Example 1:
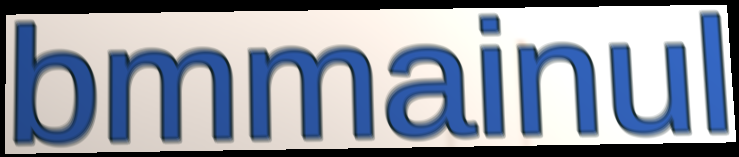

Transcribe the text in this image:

bmmainul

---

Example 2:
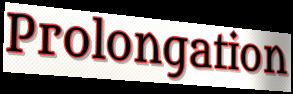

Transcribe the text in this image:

Prolongation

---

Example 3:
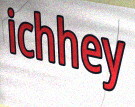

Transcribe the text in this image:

ichhey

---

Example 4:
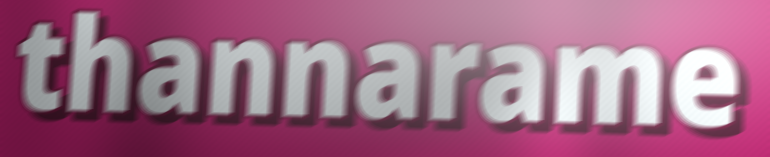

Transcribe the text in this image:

thannarame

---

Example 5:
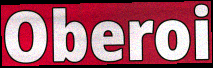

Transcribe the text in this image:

Oberoi